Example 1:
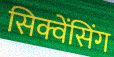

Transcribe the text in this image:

सिक्वेंसिंग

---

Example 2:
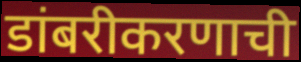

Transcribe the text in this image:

डांबरीकरणाची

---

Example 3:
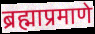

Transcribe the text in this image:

ब्रह्माप्रमाणे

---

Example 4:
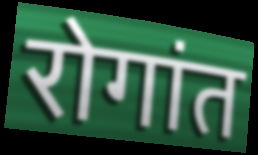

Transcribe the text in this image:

रोगांत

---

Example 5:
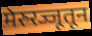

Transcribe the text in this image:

मेरुरज्जूतून